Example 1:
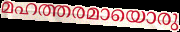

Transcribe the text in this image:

മഹത്തരമായൊരു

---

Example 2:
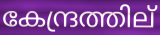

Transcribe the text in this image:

കേന്ദ്രത്തില്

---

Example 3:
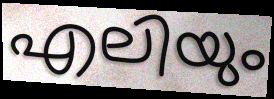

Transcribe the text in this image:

എലിയും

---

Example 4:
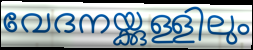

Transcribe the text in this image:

വേദനയ്ക്കുള്ളിലും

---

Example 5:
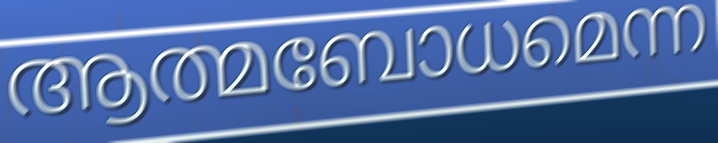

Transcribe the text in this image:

ആത്മബോധമെന്ന